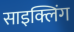
साइक्लिंग